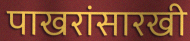
पाखरांसारखी